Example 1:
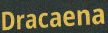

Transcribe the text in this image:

Dracaena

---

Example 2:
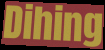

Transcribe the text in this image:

Dihing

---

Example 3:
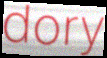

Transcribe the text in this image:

dory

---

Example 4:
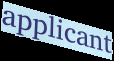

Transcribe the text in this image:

applicant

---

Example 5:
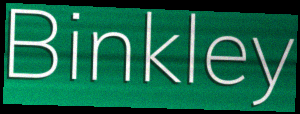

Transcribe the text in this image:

Binkley